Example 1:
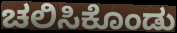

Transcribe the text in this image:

ಚಲಿಸಿಕೊಂಡು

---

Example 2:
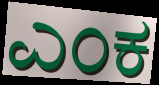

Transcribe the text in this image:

ಎಂಕ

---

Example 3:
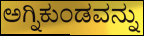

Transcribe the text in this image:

ಅಗ್ನಿಕುಂಡವನ್ನು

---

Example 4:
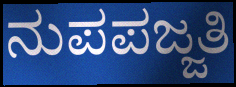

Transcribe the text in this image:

ನುಪಪಜ್ಜತಿ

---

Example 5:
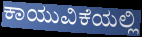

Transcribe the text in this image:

ಕಾಯುವಿಕೆಯಲ್ಲಿ